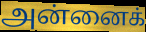
அன்னைக்